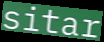
sitar